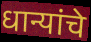
धान्यांचे